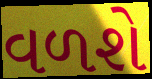
વળશે